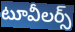
టూవీలర్స్